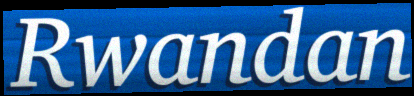
Rwandan